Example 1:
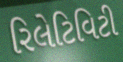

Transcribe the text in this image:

રિલેટિવિટી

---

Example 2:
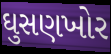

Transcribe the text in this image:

ઘુસણખોર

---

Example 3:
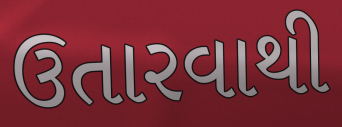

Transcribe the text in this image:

ઉતારવાથી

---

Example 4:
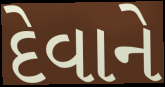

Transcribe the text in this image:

દેવાને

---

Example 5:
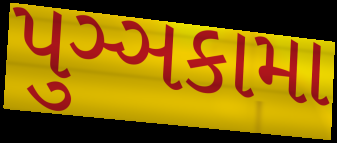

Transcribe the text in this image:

પુઞ્ઞકામા